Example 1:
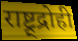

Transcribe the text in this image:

राष्ट्र्द्रोही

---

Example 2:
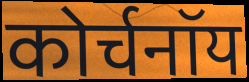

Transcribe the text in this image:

कोर्चनॉय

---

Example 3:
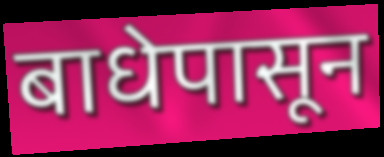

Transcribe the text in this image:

बाधेपासून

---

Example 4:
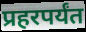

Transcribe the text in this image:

प्रहरपर्यंत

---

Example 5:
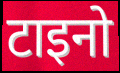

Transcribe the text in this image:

टाइनो